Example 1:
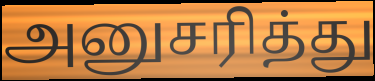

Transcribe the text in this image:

அனுசரித்து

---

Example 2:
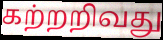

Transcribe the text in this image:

கற்றறிவது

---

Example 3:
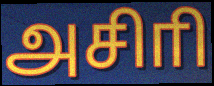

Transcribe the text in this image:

அசிரி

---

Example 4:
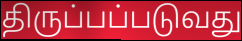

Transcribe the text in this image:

திருப்பப்படுவது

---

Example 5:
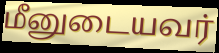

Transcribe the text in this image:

மீனுடையவர்